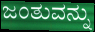
ಜಂತುವನ್ನು